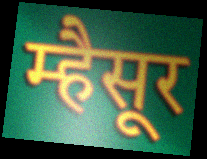
म्हैसूर